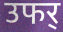
उफर्